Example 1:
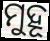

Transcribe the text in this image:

ମୁହୂ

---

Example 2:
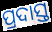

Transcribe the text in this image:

ପ୍ରଦାସ୍ତ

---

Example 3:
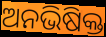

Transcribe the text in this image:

ଅନଭିଷିକ୍ତ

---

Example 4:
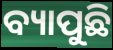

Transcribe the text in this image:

ବ୍ୟାପୁଛି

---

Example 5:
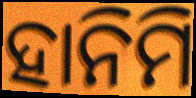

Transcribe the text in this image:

ହାନିମି